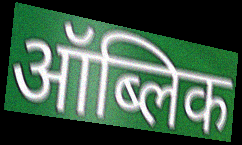
ऑब्लिक